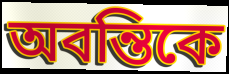
অবন্তিকে